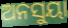
ଅନସୁୟା